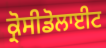
ਕ੍ਰੋਸੀਡੋਲਾਈਟ